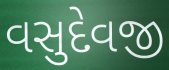
વસુદેવજી